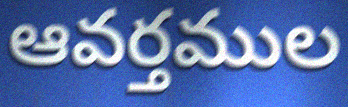
ఆవర్తముల